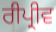
ਰੀਪ੍ਰੀਵ